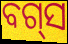
ବଗ୍‌ସ